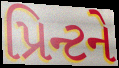
પ્રિન્ટને